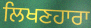
ਲਿਖਣਹਾਰਾ